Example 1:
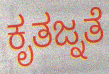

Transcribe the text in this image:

ಕೃತಜ್ನತೆ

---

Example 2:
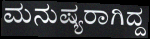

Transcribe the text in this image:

ಮನುಷ್ಯರಾಗಿದ್ದ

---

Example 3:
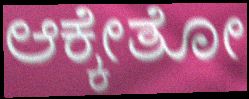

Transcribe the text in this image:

ಆಕ್ಕೇತೋ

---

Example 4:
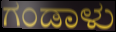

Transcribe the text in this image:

ಗಂಡಾಳು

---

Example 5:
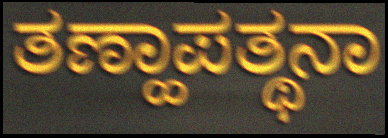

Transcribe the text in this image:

ತಣ್ಹಾಪತ್ಥನಾ